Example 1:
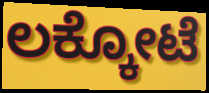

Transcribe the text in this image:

ಲಕ್ಕೋಟೆ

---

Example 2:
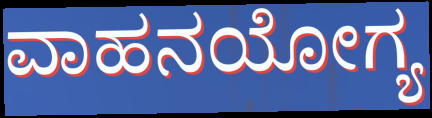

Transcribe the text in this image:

ವಾಹನಯೋಗ್ಯ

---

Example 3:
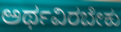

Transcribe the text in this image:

ಅರ್ಥವಿರಬೇಕು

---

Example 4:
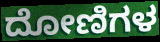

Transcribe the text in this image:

ದೋಣಿಗಳ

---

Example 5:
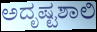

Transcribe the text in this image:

ಅದೃಷ್ಟಶಾಲಿ